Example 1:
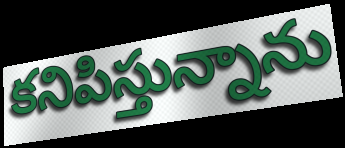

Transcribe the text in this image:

కనిపిస్తున్నాను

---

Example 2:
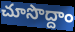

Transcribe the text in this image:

చూసొద్దాం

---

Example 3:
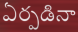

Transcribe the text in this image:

ఏర్పడినా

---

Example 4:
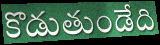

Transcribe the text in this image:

కొడుతుండేది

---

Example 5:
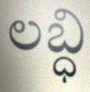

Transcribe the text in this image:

లబ్ధి